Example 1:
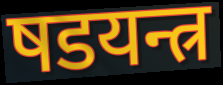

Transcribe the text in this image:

षडयन्त्र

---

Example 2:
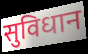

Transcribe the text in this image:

सुविधान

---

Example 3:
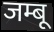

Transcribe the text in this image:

जम्बू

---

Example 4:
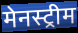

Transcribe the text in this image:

मेनस्ट्रीम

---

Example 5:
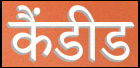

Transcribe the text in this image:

कैंडीड